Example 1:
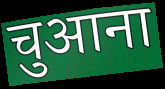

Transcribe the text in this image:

चुआना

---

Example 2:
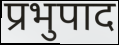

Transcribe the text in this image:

प्रभुपाद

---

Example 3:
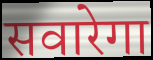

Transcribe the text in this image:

सवारेगा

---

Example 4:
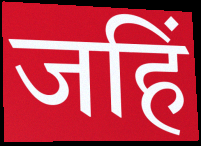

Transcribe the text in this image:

जहिं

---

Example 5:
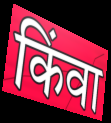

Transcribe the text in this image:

किंवा